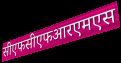
सीएफसीएफआरएमएस